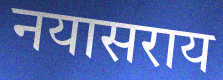
नयासराय